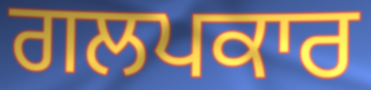
ਗਲਪਕਾਰ